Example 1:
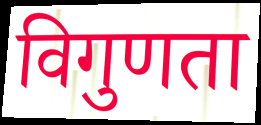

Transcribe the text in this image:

विगुणता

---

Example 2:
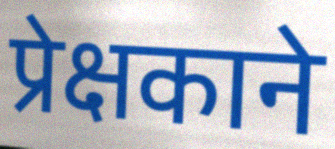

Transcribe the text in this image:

प्रेक्षकाने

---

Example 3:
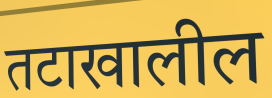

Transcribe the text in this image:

तटाखालील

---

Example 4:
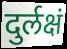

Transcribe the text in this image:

दुर्लक्षं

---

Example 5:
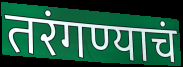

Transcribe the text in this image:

तरंगण्याचं